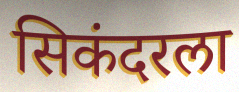
सिकंदरला